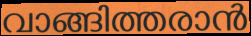
വാങ്ങിത്തരാൻ